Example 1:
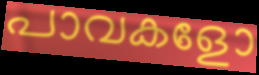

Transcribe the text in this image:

പാവകളോ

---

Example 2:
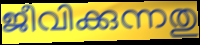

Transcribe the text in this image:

ജീവിക്കുന്നതു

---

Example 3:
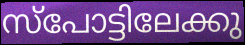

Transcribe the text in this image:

സ്പോട്ടിലേക്കു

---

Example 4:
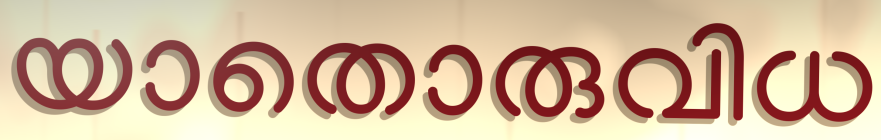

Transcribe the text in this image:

യാതൊരുവിധ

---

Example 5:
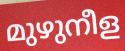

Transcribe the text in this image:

മുഴുനീള